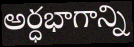
అర్ధభాగాన్ని